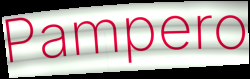
Pampero